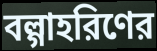
বল্গাহরিণের